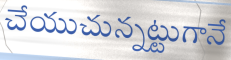
చేయుచున్నట్టుగానే